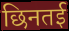
छिनतई